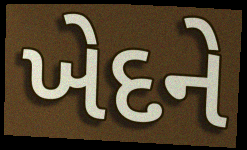
ખેદને